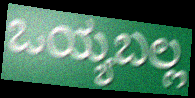
ಒಯ್ಯಬಲ್ಲ